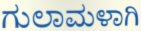
ಗುಲಾಮಳಾಗಿ